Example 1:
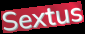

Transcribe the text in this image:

Sextus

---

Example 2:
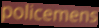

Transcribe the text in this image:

policemens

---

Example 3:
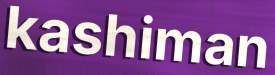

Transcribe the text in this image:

kashiman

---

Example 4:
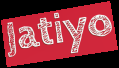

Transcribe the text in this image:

Jatiyo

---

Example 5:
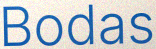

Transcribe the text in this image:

Bodas